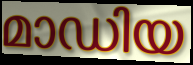
മാഡിയ